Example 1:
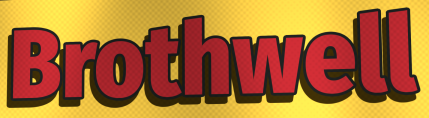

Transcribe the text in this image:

Brothwell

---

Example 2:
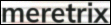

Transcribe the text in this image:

meretrix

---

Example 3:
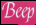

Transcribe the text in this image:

Beep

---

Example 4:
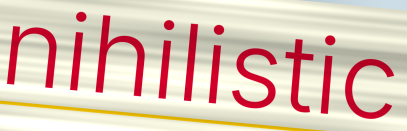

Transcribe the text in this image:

nihilistic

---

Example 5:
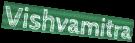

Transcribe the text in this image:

Vishvamitra